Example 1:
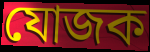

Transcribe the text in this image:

যোজক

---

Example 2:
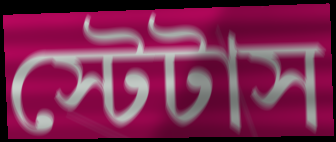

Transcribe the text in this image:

স্টেটাস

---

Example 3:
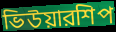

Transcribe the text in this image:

ভিউয়ারশিপ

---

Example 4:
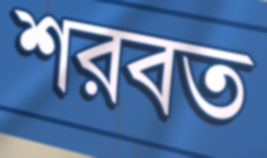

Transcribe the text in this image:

শরবত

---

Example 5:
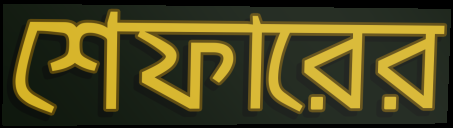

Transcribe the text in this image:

শেফারের